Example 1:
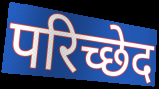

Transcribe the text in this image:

परिच्छेद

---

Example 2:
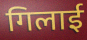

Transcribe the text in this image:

गिलाई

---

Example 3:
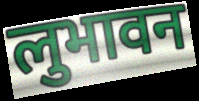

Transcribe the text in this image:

लुभावन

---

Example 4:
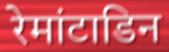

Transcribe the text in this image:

रेमांटाडिन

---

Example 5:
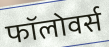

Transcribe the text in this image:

फॉलोवर्स